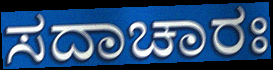
ಸದಾಚಾರಃ